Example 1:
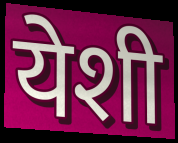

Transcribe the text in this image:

येशी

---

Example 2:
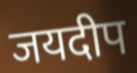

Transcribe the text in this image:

जयदीप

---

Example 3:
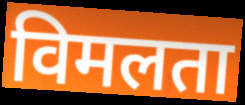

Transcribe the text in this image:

विमलता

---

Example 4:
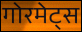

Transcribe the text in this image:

गोरमेट्स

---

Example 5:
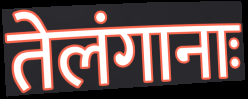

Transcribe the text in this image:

तेलंगानाः